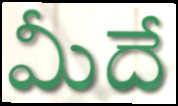
మీదే